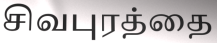
சிவபுரத்தை